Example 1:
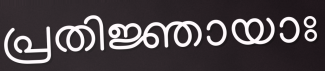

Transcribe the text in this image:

പ്രതിജ്ഞായാഃ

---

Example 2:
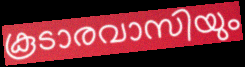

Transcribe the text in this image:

കൂടാരവാസിയും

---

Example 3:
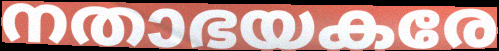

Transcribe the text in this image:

നതാഭയകരേ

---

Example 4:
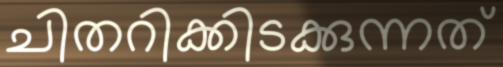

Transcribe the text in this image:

ചിതറിക്കിടക്കുന്നത്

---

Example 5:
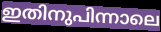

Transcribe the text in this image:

ഇതിനുപിന്നാലെ